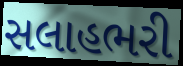
સલાહભરી